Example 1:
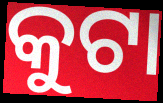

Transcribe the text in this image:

କୁଟା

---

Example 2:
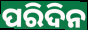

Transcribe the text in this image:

ପରିଦିନ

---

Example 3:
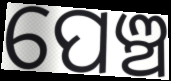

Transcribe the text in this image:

ପେଞ୍ଚ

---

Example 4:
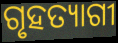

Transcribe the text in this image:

ଗୃହତ୍ୟାଗୀ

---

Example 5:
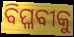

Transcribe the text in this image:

ବିପ୍ଳବୀକୁ